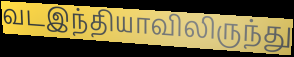
வடஇந்தியாவிலிருந்து